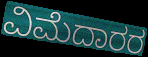
ವಿಮೆದಾರರ